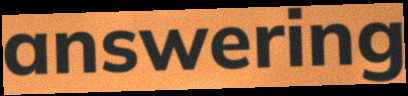
answering